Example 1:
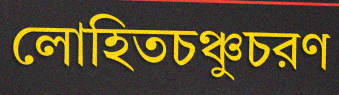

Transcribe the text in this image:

লোহিতচঞ্চুচরণ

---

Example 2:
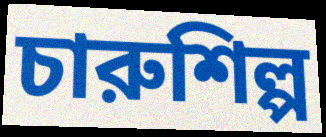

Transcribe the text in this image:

চারুশিল্প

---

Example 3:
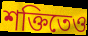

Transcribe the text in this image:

শক্তিতেও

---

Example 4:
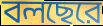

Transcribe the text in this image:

বলছেরে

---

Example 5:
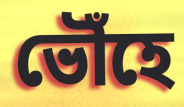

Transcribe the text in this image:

ভৌঁহে